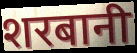
शरबानी